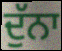
ਦੁੱਨਾ